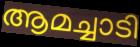
ആമച്ചാടി